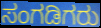
ಸಂಗಡಿಗರು